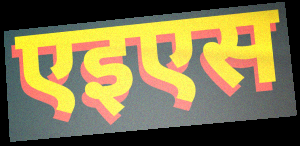
एइएस